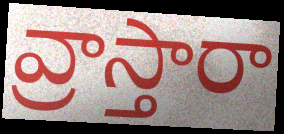
వ్రాస్తారా